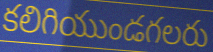
కలిగియుండగలరు